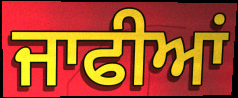
ਜਾਫੀਆਂ